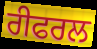
ਰੀਫਰਲ